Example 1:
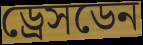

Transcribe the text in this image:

ড্রেসডেন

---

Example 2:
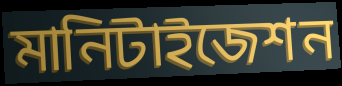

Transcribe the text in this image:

মানিটাইজেশন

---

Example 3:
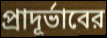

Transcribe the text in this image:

প্রাদূর্ভাবের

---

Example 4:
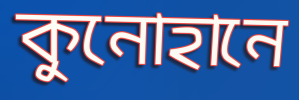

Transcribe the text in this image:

কুনোহানে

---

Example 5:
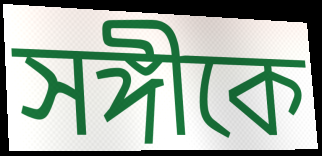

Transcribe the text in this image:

সঙ্গীকে